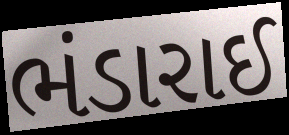
ભંડારાઈ